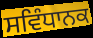
ਸਵਿੰਧਾਨਕ